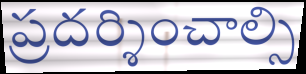
ప్రదర్శించాల్సి